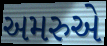
અમરુએ